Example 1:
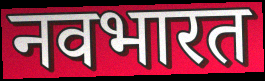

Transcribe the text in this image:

नवभारत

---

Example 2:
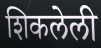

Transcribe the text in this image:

शिकलेली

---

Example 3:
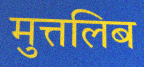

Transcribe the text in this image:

मुत्तलिब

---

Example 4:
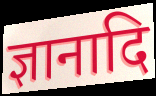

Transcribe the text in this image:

ज्ञानादि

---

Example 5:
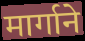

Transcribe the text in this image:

मार्गाने